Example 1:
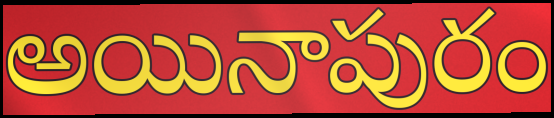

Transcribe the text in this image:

అయినాపురం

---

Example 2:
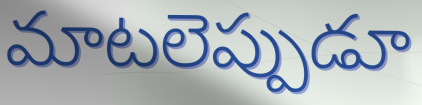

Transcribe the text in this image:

మాటలెప్పుడూ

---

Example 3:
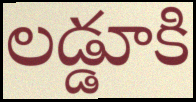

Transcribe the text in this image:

లడ్డూకి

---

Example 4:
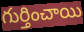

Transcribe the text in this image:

గుర్తించాయి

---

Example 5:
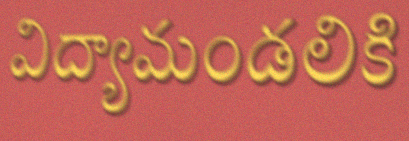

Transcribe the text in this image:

విద్యామండలికి